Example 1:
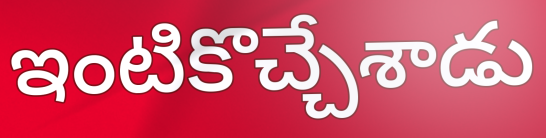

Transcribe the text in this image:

ఇంటికొచ్చేశాడు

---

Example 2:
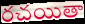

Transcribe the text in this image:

రచయితా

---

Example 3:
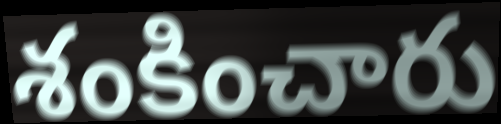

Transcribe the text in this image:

శంకించారు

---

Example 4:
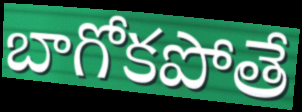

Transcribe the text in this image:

బాగోకపోతే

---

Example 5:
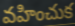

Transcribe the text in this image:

వహించుక